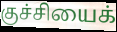
குச்சியைக்